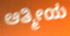
ಆತ್ಮೀಯ